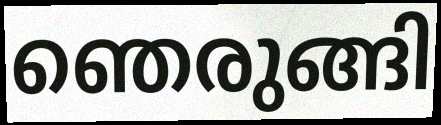
ഞെരുങ്ങി